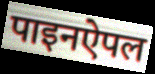
पाइनऐपल